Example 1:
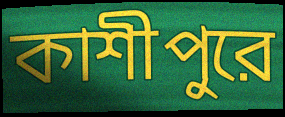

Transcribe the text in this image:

কাশীপুরে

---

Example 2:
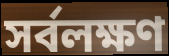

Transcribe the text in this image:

সর্বলক্ষণ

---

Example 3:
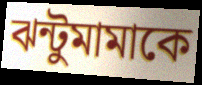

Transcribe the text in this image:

ঝন্টুমামাকে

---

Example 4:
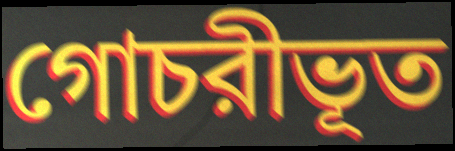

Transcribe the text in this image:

গোচরীভূত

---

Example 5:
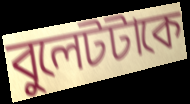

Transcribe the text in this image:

বুলেটটাকে